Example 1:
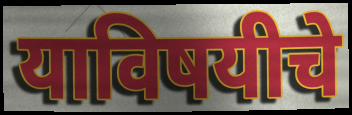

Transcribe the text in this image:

याविषयीचे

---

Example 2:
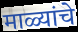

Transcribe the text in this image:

माळ्यांचे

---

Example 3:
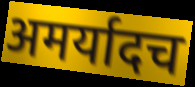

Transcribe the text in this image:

अमर्यादच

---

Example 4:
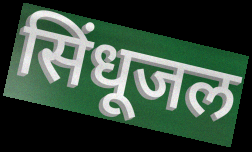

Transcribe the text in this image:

सिंधूजल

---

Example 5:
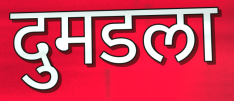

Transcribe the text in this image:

दुमडला